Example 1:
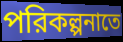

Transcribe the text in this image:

পরিকল্পনাতে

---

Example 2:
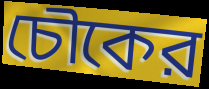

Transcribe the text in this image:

চৌকের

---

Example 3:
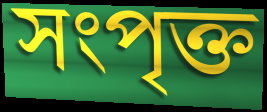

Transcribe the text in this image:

সংপৃক্ত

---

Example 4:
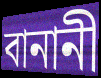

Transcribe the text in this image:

বানানী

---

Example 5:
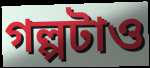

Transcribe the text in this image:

গল্পটাও